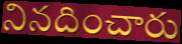
నినదించారు